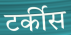
टर्कीस